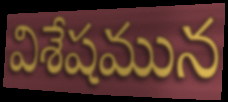
విశేషమున